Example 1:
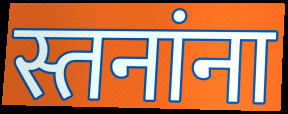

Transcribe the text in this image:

स्तनांना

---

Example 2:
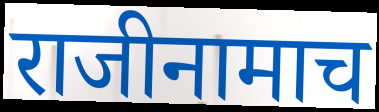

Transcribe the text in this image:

राजीनामाच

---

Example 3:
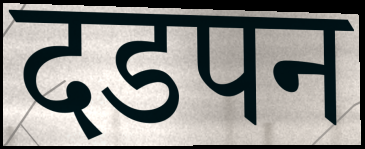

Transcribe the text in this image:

दडपन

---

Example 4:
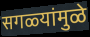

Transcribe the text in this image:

सगळ्यांमुळे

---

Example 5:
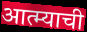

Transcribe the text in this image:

आत्म्याची